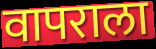
वापराला